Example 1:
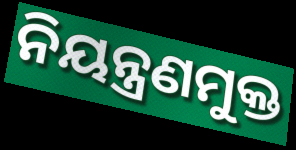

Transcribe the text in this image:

ନିୟନ୍ତ୍ରଣମୁକ୍ତ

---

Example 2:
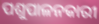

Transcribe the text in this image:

ପଶୁପାଳନକାରୀ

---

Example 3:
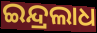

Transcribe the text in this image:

ଇନ୍ଦ୍ରଲାଧ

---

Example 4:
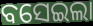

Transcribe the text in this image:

ବସେଇଲା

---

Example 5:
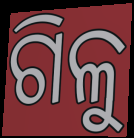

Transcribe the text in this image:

ଗିଳୁ